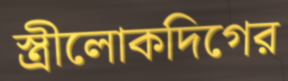
স্ত্রীলোকদিগের